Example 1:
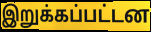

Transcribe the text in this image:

இறுக்கப்பட்டன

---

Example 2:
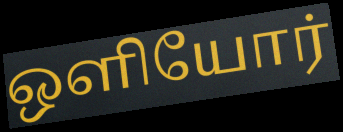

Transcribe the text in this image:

ஒளியோர்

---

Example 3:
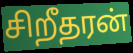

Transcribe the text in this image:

சிறீதரன்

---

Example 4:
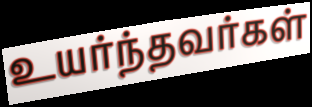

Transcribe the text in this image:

உயர்ந்தவர்கள்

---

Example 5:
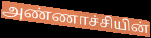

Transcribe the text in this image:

அண்ணாச்சியின்